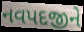
નવપદજીને